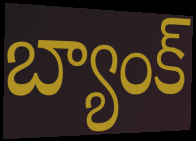
బ్యాంక్